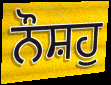
ਨੌਸ਼ਹੁ